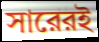
সারেরই